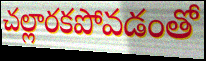
చల్లారకపోవడంతో